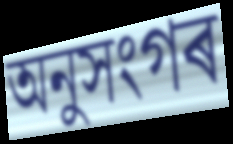
অনুসংগৰ